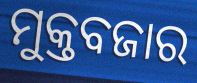
ମୁକ୍ତବଜାର